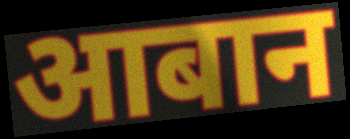
आबान